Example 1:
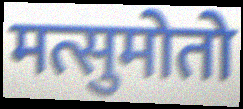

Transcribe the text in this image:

मत्सुमोतो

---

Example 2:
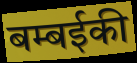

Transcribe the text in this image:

बम्बईकी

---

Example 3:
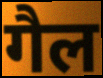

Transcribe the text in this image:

गैल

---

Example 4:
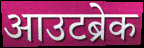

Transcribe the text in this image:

आउटब्रेक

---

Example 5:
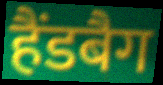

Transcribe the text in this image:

हैंडबैग